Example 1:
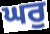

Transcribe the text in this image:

ਘਰੁ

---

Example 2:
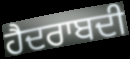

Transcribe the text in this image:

ਹੈਦਰਾਬਦੀ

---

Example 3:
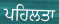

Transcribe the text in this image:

ਪਹਿਲਤਾ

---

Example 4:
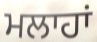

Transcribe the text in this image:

ਮਲਾਹਾਂ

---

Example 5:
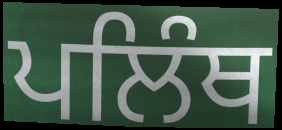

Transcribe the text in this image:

ਪਲਿੰਥ